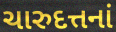
ચારુદત્તનાં